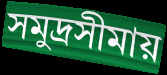
সমুদ্রসীমায়